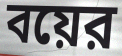
বয়ের